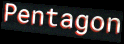
Pentagon